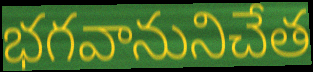
భగవానునిచేత